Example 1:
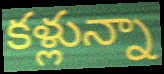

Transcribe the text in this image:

కళ్లున్నా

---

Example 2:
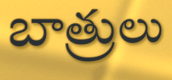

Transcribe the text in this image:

బాత్రులు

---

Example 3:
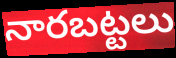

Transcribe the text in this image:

నారబట్టలు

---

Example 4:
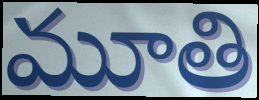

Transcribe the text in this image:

మూతి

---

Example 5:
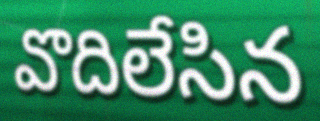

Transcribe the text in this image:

వొదిలేసిన